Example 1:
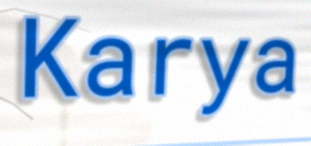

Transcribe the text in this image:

Karya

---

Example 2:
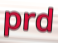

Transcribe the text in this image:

prd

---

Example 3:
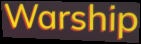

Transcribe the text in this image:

Warship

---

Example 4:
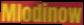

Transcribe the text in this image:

Mlodinow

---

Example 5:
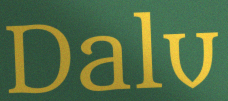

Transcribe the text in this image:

Dalu